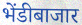
भेंडीबाजार